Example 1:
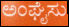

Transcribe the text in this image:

ಅಂಘೈಸು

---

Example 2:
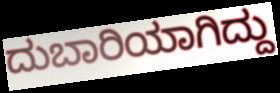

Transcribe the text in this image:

ದುಬಾರಿಯಾಗಿದ್ದು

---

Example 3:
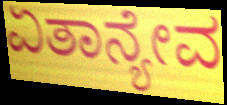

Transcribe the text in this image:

ಏತಾನ್ಯೇವ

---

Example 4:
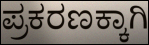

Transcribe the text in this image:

ಪ್ರಕರಣಕ್ಕಾಗಿ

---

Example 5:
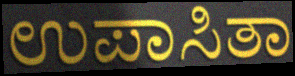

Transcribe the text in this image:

ಉಪಾಸಿತಾ